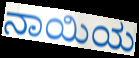
ನಾಯಿಯ